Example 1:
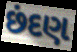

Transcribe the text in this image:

છંદણ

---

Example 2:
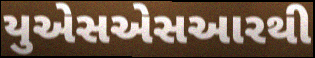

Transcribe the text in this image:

યુએસએસઆરથી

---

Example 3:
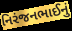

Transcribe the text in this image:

નિરંજનભાઈનું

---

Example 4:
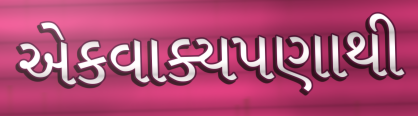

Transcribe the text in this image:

એકવાક્યપણાથી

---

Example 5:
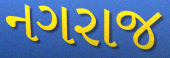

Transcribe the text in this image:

નગરાજ